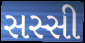
સસ્સી